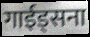
गाईड्सना